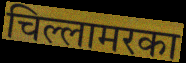
चिल्लामरका